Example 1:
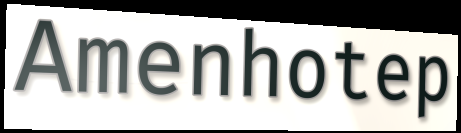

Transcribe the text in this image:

Amenhotep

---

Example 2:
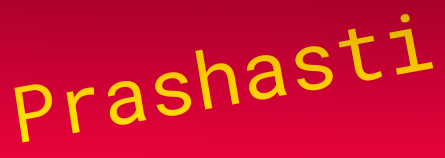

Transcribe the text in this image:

Prashasti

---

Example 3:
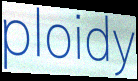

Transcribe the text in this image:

ploidy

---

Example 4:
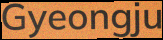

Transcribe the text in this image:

Gyeongju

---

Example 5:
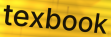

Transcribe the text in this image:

texbook